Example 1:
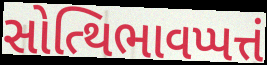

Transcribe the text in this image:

સોત્થિભાવપ્પત્તં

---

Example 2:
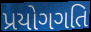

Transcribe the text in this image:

પ્રયોગગતિ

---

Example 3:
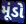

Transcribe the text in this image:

મૂંડો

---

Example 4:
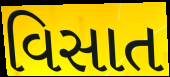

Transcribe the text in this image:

વિસાત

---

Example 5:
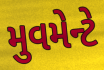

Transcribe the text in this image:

મુવમેન્ટે